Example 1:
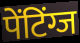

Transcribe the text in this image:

पेंटिंग्ज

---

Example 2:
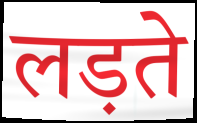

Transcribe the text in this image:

लड़ते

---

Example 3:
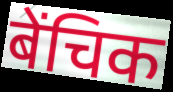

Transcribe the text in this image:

बेंचिक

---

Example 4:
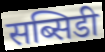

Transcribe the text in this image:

सब्सिडी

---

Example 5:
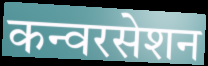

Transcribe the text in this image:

कन्वरसेशन